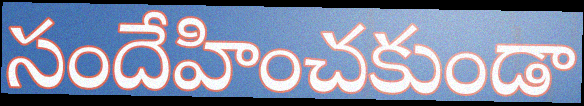
సందేహించకుండా